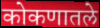
कोकणातले